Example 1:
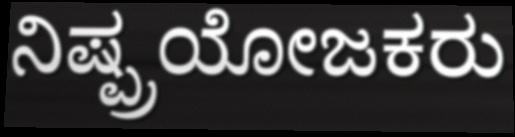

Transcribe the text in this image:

ನಿಷ್ಪ್ರಯೋಜಕರು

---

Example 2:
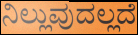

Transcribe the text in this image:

ನಿಲ್ಲುವುದಲ್ಲದೆ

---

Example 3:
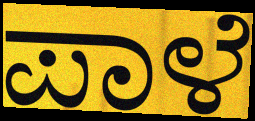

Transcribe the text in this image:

ಪಾಳೆ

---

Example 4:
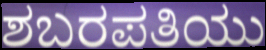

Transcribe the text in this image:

ಶಬರಪತಿಯು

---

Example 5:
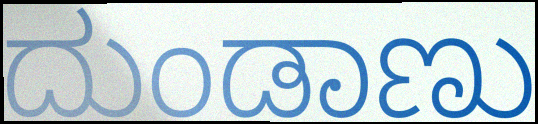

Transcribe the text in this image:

ದುಂಡಾಣು